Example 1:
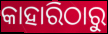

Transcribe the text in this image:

କାହାରିଠାରୁ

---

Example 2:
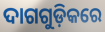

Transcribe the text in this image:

ଦାଗଗୁଡ଼ିକରେ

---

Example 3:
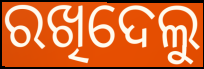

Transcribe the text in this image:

ରଖିଦେଲୁ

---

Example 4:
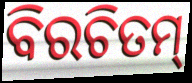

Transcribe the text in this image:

ବିରଚିତମ୍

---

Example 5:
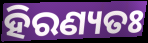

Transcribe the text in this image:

ହିରଣ୍ୟତଃ